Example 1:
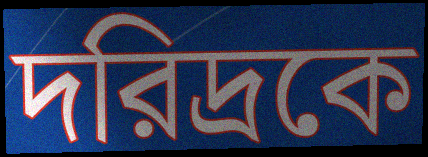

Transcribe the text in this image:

দরিদ্রকে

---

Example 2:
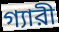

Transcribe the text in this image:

গ্যারী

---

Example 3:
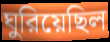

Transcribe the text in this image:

ঘুরিয়েছিল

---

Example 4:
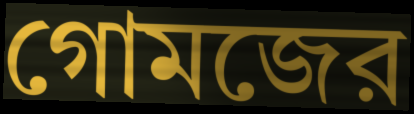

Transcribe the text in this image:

গোমজের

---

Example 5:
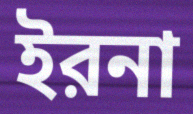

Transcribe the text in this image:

ইরনা